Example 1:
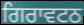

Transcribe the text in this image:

ਗਿਰਾਵਟਠ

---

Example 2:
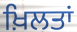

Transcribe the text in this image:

ਖ਼ਿਲਤਾਂ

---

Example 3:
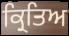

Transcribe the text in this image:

ਕ੍ਰਿਤਿਅ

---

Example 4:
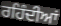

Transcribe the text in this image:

ਰਹਿੰਦੀਆਂ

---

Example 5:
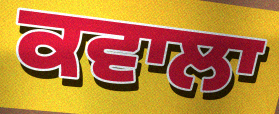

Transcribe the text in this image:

ਕਵਾਲਾ